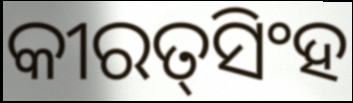
କୀରତ୍‍ସିଂହ